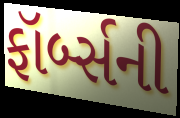
ફૉર્બ્સની